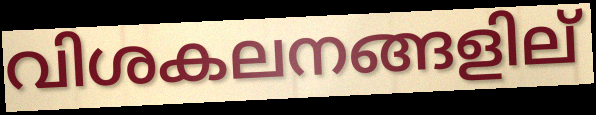
വിശകലനങ്ങളില്